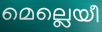
മെല്ലെയീ